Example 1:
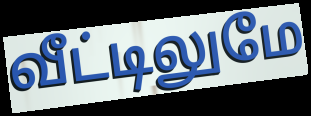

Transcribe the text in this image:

வீட்டிலுமே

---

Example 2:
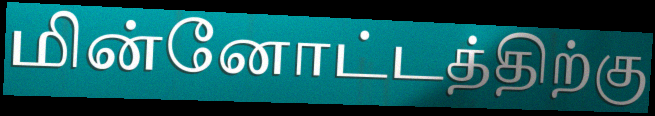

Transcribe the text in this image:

மின்னோட்டத்திற்கு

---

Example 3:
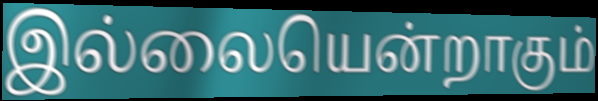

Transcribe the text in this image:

இல்லையென்றாகும்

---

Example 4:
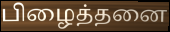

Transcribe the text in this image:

பிழைத்தனை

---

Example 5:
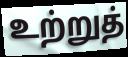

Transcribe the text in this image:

உற்றுத்